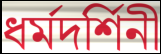
ধর্মদর্শিনী